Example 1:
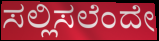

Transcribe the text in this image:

ಸಲ್ಲಿಸಲೆಂದೇ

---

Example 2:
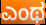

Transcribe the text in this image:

ಎಂಥ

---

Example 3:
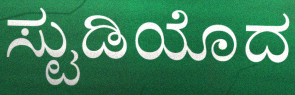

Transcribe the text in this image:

ಸ್ಟುಡಿಯೊದ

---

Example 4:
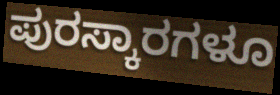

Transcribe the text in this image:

ಪುರಸ್ಕಾರಗಳೂ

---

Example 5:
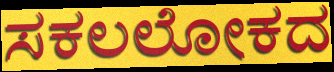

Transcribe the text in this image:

ಸಕಲಲೋಕದ